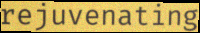
rejuvenating